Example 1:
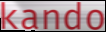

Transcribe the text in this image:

kando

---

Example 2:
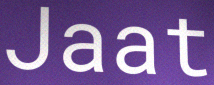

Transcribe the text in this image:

Jaat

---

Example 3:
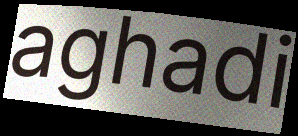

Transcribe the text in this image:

aghadi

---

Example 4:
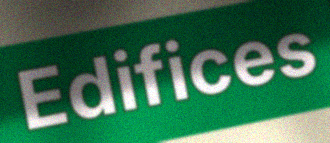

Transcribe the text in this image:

Edifices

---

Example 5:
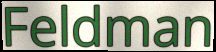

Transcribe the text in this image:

Feldman